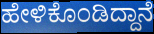
ಹೇಳಿಕೊಂಡಿದ್ದಾನೆ